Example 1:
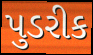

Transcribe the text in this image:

પુડરીક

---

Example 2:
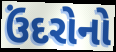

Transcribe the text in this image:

ઉંદરોનો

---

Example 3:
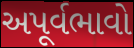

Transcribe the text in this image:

અપૂર્વભાવો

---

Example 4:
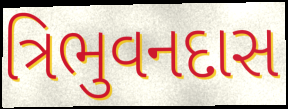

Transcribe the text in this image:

ત્રિભુવનદાસ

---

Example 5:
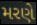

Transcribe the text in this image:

મરણે